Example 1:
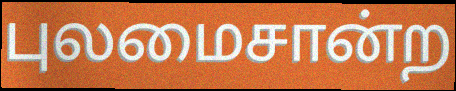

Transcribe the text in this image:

புலமைசான்ற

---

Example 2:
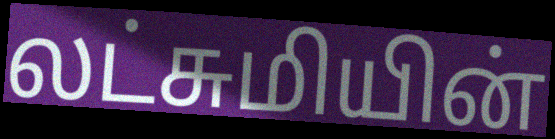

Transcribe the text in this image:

லட்சுமியின்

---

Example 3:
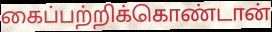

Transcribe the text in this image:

கைப்பற்றிக்கொண்டான்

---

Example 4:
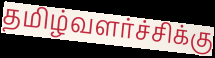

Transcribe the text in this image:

தமிழ்வளர்ச்சிக்கு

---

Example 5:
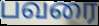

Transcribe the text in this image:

பவரை